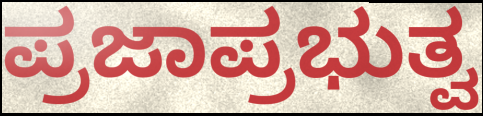
ಪ್ರಜಾಪ್ರಭುತ್ವ